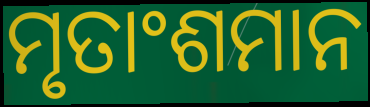
ମୃତାଂଶମାନ